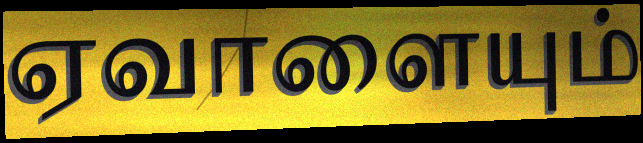
ஏவாளையும்